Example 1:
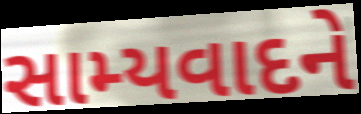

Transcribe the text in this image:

સામ્યવાદને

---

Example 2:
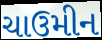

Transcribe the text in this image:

ચાઉમીન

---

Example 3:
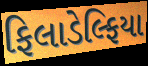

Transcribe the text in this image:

ફિલાડેલ્ફિયા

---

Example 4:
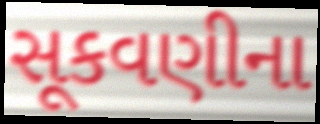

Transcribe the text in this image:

સૂકવણીના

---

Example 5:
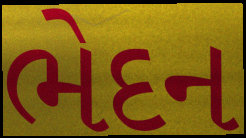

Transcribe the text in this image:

ભેદન